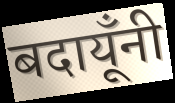
बदायूँनी